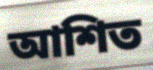
আশিত